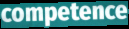
competence